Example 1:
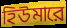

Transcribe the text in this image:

হিউমারে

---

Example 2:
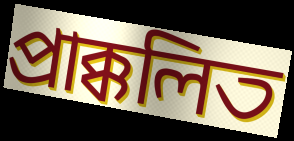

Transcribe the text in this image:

প্রাক্কলিত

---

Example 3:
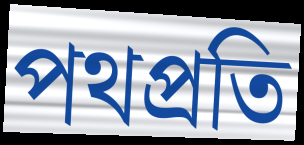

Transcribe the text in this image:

পথপ্রতি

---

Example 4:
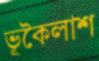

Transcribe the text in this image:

ভূকৈলাশ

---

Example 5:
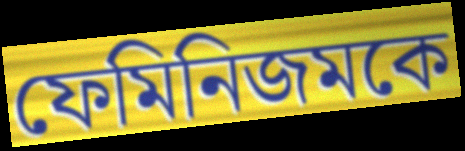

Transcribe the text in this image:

ফেমিনিজমকে